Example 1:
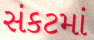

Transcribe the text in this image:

સંકટમાં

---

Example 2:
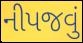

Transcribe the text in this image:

નીપજવું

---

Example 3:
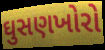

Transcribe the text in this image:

ઘુસણખોરો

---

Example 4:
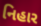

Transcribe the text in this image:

નિહાર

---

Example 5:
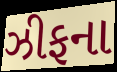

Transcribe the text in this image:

ઝીફના